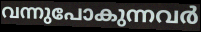
വന്നുപോകുന്നവർ